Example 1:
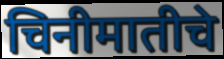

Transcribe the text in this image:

चिनीमातीचे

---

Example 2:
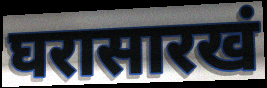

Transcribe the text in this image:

घरासारखं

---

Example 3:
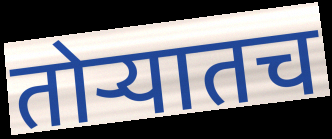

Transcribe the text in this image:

तोऱ्यातच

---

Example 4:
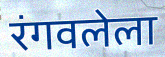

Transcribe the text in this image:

रंगवलेला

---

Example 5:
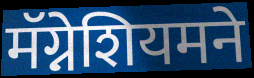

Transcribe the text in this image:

मॅग्नेशियमने